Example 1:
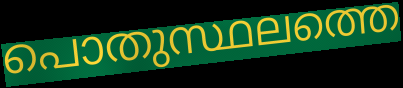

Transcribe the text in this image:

പൊതുസ്ഥലത്തെ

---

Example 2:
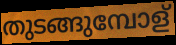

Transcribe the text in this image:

തുടങ്ങുമ്പോള്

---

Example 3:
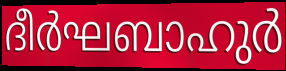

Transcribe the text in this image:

ദീർഘബാഹുർ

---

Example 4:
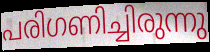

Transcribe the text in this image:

പരിഗണിച്ചിരുന്നു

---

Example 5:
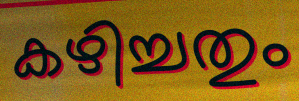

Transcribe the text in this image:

കഴിച്ചതും